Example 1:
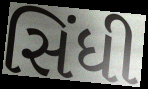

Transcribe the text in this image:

સિંધી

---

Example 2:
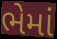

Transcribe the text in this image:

ભેમાં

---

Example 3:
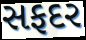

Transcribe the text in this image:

સફદર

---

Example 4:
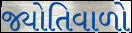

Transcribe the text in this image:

જ્યોતિવાળો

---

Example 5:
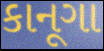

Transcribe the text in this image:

કાનૂગા